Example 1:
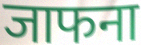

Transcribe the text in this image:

जाफना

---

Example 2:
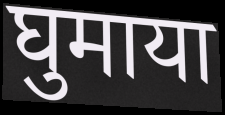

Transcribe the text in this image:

घुमाया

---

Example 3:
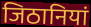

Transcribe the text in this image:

जिठानियां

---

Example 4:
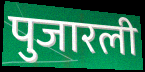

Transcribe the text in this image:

पुजारली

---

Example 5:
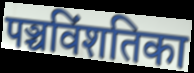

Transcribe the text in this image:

पञ्चविंशतिका